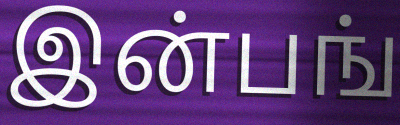
இன்பங்